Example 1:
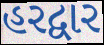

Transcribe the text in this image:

હરદ્વાર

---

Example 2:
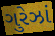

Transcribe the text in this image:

ગુરેઝાં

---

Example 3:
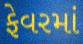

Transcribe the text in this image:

ફેવરમાં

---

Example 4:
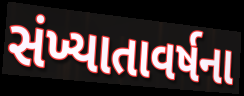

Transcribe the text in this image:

સંખ્યાતાવર્ષના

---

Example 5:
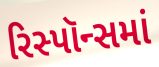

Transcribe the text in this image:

રિસ્પૉન્સમાં